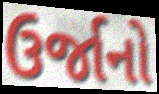
ઉર્જાનો